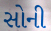
સોની